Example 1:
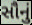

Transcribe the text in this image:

સૌનું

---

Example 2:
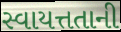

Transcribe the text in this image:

સ્વાયત્તતાની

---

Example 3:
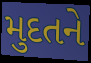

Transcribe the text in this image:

મુદતને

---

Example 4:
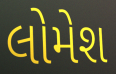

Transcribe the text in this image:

લોમેશ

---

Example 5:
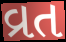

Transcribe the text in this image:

વ્રત